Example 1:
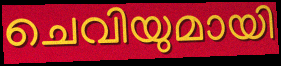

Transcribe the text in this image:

ചെവിയുമായി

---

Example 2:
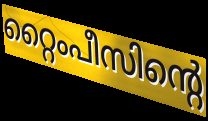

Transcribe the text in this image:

റ്റൈംപീസിന്റെ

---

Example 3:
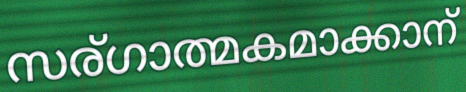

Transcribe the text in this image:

സര്ഗാത്മകമാക്കാന്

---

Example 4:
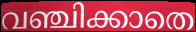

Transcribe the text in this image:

വഞ്ചിക്കാതെ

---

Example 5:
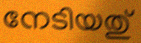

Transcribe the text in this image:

നേടിയതു്